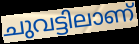
ചുവട്ടിലാണ്